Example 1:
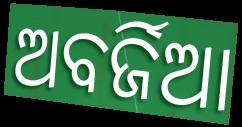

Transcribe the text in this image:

ଅବର୍ଜିଆ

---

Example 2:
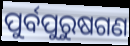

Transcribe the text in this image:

ପୁର୍ବପୁରୁଷଗଣ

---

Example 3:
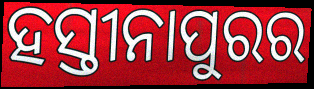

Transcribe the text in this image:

ହସ୍ତୀନାପୁରର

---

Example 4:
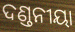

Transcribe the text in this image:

ଦଣ୍ଡନୀୟା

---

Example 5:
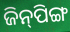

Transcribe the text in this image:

ଜିନ୍‌ପିଙ୍ଗ